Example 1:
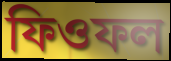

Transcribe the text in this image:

ফিওফল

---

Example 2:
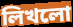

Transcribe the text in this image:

লিখলো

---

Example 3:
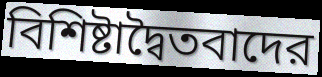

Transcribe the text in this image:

বিশিষ্টাদ্বৈতবাদের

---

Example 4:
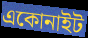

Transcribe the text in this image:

একোনাইট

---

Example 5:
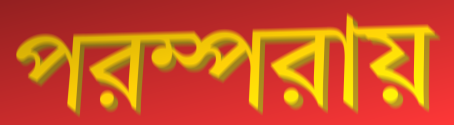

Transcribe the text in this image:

পরম্পরায়